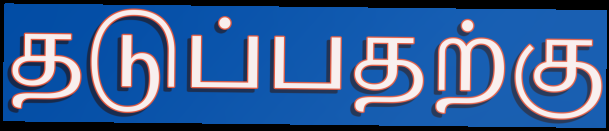
தடுப்பதற்கு